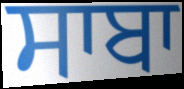
ਸਾਬਾ